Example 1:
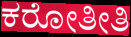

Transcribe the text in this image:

ಕರೋತೀತಿ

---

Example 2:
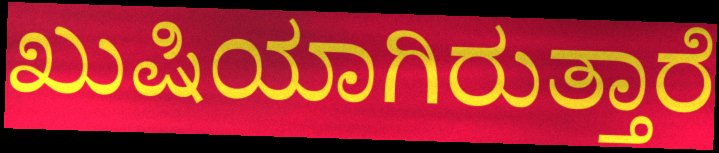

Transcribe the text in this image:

ಖುಷಿಯಾಗಿರುತ್ತಾರೆ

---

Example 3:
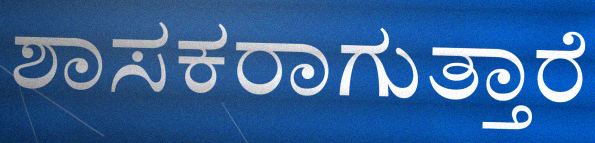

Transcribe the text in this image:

ಶಾಸಕರಾಗುತ್ತಾರೆ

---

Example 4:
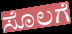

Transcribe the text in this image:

ಸೊಲಗೆ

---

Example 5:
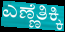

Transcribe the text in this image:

ಎಣ್ಣೆತಿಕ್ಕಿ